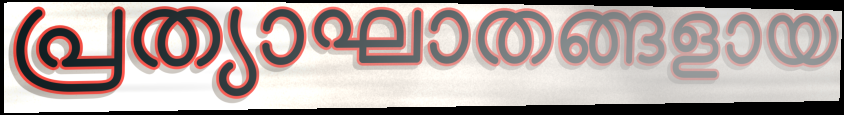
പ്രത്യാഘാതങ്ങളായ